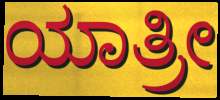
ಯಾತ್ರೀ